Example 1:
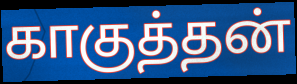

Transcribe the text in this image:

காகுத்தன்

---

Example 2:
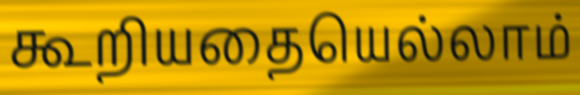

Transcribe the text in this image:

கூறியதையெல்லாம்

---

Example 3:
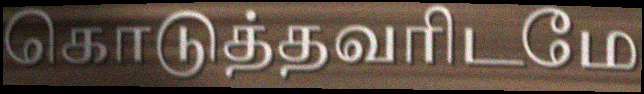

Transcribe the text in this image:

கொடுத்தவரிடமே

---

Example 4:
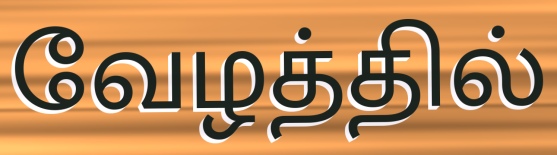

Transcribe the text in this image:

வேழத்தில்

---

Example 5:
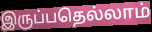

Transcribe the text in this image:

இருப்பதெல்லாம்